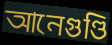
আনেগুণ্ডি